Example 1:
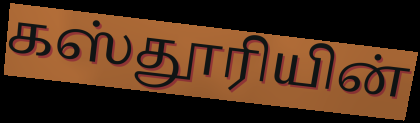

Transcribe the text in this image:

கஸ்தூரியின்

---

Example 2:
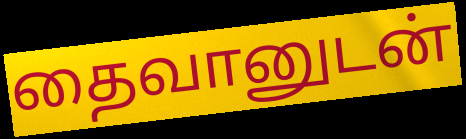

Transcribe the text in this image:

தைவானுடன்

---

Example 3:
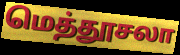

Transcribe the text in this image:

மெத்தூசலா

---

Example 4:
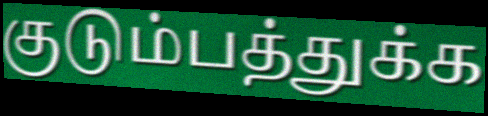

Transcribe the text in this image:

குடும்பத்துக்க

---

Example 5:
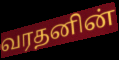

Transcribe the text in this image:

வரதனின்